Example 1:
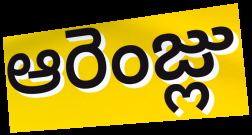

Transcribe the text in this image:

ఆరెంజ్లు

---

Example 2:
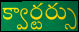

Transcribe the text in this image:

క్వార్టర్సు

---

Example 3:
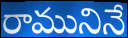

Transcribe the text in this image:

రామునినే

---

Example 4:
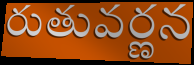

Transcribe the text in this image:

రుతువర్ణన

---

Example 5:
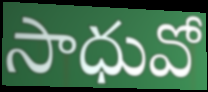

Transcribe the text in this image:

సాధువో